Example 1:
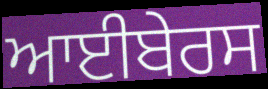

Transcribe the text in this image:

ਆਈਬੇਰਸ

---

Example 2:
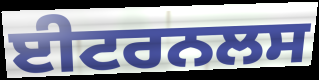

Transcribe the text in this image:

ਈਟਰਨਲਸ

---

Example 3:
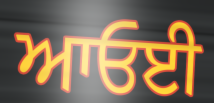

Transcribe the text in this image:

ਆਓਈ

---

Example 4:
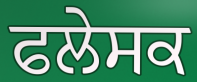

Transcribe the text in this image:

ਫਲੇਸਕ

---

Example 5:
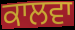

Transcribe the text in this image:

ਕਾਲਵਾ